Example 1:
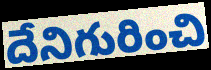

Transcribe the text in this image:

దేనిగురించి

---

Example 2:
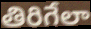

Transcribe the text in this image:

తిరిగేలా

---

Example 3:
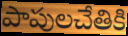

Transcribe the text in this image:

పాపులచేతికి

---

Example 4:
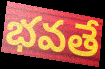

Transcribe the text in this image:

భవతే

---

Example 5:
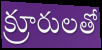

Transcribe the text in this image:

క్రూరులతో